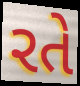
રતે